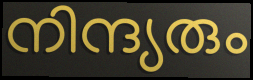
നിന്ദ്യരും